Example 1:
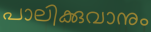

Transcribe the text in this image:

പാലിക്കുവാനും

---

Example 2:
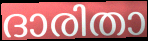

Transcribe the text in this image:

ദാരിതാ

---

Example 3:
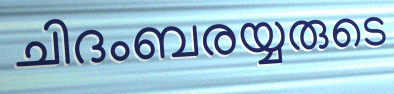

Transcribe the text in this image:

ചിദംബരയ്യരുടെ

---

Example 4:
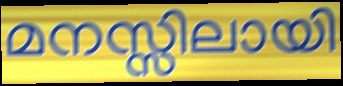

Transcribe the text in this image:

മനസ്സിലായി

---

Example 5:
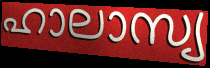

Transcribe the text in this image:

ഹാലാസ്യ